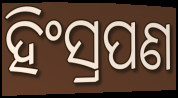
ହିଂସ୍ରପଣ